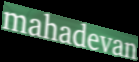
mahadevan